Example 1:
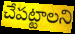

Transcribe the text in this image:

చేపట్టాలని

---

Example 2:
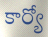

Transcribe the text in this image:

కార్యో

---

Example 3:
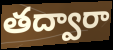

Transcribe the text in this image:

తద్వారా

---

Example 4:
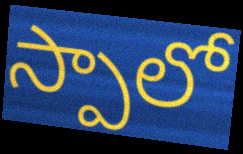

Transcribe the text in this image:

స్పాలో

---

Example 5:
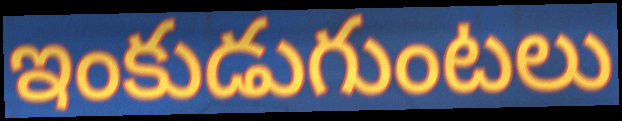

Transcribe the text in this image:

ఇంకుడుగుంటలు